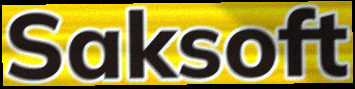
Saksoft